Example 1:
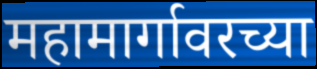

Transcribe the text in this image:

महामार्गावरच्या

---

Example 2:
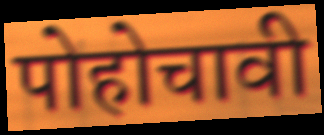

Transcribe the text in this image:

पोहोचावी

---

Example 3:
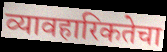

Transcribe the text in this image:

व्यावहारिकतेचा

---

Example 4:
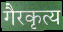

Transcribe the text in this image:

गैरकृत्य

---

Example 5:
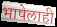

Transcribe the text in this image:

भाषेलाही